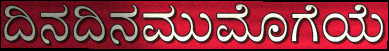
ದಿನದಿನಮುಮೊಗೆಯೆ